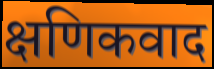
क्षणिकवाद